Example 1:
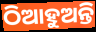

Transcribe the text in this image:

ଠିଆହୁଅନ୍ତି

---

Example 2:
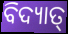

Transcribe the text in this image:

ବିଦ୍ୟାତ୍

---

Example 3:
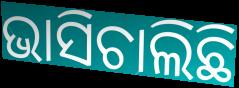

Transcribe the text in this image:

ଭାସିଚାଲିଛି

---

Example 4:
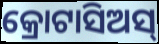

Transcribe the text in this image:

କ୍ରୋଟାସିଅସ୍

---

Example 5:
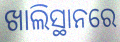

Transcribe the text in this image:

ଖାଲିସ୍ଥାନରେ